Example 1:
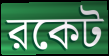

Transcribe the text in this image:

রকেট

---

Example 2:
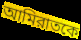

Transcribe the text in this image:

আমিরাতকে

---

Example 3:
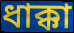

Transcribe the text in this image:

ধাক্কা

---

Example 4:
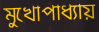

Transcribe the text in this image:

মুখোপাধ্যায়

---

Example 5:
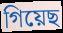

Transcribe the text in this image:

গিয়েছ